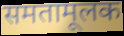
समतामूलक